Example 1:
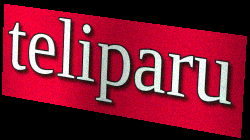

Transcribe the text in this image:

teliparu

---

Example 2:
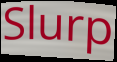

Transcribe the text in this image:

Slurp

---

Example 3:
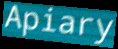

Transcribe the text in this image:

Apiary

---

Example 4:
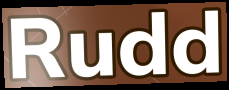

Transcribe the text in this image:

Rudd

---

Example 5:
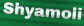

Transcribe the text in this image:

Shyamoli